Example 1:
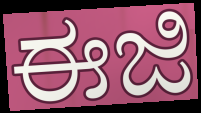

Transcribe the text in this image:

ಈಜಿ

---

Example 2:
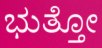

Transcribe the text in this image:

ಭುತ್ತೋ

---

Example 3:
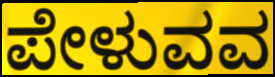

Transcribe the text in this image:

ಪೇಳುವವ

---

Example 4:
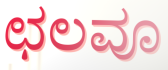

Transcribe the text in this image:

ಛಲವೂ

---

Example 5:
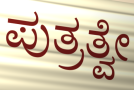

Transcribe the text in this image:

ಪುತ್ರತ್ವೇ